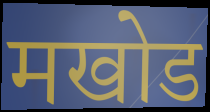
मखोड